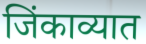
जिंकाव्यात